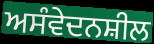
ਅਸੰਵੇਦਨਸ਼ੀਲ